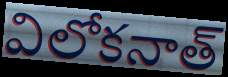
విలోకనాత్